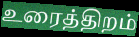
உரைத்திறம்